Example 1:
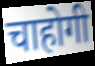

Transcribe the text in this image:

चाहोगी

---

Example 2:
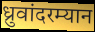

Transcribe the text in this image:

ध्रुवांदरम्यान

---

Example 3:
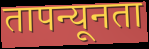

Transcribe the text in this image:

तापन्यूनता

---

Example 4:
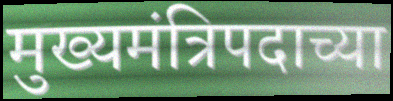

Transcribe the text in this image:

मुख्यमंत्रिपदाच्या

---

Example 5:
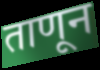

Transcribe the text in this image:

ताणून